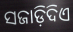
ସଜାଡ଼ିଦିଏ